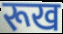
रूख